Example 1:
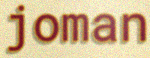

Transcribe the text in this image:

joman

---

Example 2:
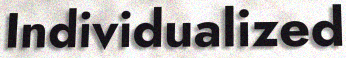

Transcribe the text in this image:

Individualized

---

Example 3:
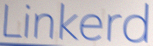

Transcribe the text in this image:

Linkerd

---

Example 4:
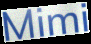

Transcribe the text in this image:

Mimi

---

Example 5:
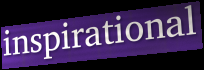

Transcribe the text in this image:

inspirational